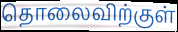
தொலைவிற்குள்